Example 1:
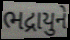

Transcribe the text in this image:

ભદ્રાયુને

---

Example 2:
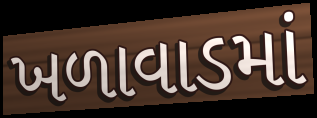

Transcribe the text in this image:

ખળાવાડમાં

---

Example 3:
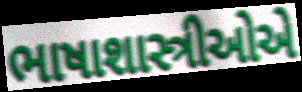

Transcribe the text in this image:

ભાષાશાસ્ત્રીઓએ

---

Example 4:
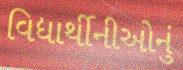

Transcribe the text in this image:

વિદ્યાર્થીનીઓનું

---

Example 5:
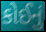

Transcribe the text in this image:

કોઈનું